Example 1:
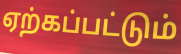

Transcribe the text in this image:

ஏற்கப்பட்டும்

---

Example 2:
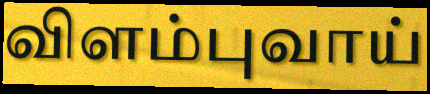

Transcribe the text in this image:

விளம்புவாய்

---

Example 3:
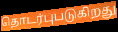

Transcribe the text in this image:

தொடர்புபடுகிறது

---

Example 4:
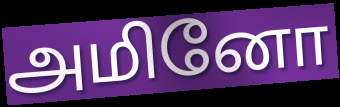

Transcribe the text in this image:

அமினோ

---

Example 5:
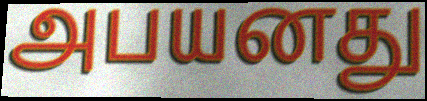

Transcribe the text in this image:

அபயனது